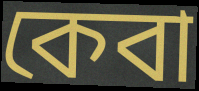
কেবা